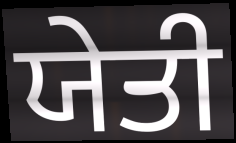
ਯੇਤੀ